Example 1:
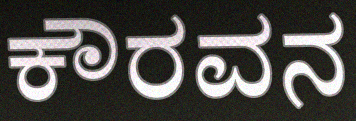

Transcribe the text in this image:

ಕೌರವನ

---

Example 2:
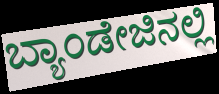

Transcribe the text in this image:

ಬ್ಯಾಂಡೇಜಿನಲ್ಲಿ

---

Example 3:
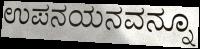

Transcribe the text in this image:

ಉಪನಯನವನ್ನೂ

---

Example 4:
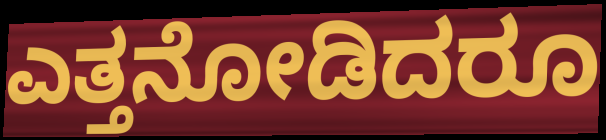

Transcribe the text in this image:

ಎತ್ತನೋಡಿದರೂ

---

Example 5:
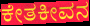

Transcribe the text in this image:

ಕೇತಕೀವನ